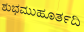
ಶುಭಮುಹೂರ್ತದಿ